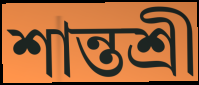
শান্তশ্রী